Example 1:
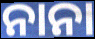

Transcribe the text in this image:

ନାନା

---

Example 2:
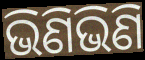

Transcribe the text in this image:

ଭିଣିଭିଣି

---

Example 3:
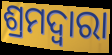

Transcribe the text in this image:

ଶ୍ରମଦ୍ୱାରା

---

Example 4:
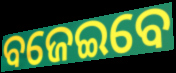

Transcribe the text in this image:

ବଜେଇବେ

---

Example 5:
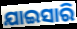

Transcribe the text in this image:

ଯାଇସାରି